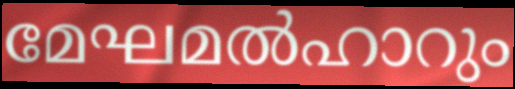
മേഘമൽഹാറും